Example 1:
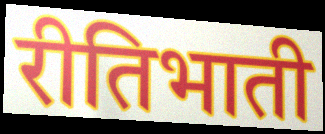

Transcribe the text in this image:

रीतिभाती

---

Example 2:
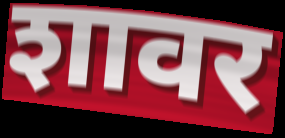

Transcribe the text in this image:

शावर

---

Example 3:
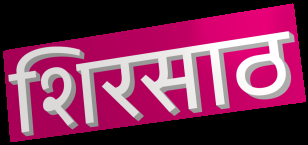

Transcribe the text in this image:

शिरसाठ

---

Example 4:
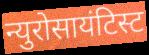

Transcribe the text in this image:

न्युरोसायंटिस्ट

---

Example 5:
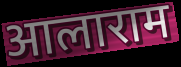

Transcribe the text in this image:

आलाराम